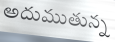
అదుముతున్న